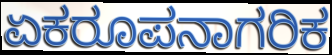
ಏಕರೂಪನಾಗರಿಕ